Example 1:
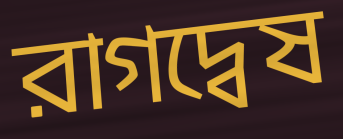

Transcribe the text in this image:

রাগদ্বেষ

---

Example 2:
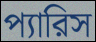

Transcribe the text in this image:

প্যারিস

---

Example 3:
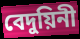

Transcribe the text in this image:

বেদুয়িনী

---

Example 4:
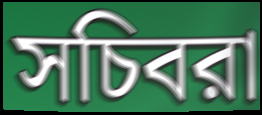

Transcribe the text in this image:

সচিবরা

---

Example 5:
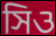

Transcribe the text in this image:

সিও